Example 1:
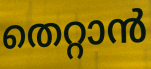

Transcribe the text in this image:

തെറ്റാൻ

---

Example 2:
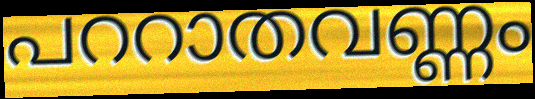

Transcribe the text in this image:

പററാതവണ്ണം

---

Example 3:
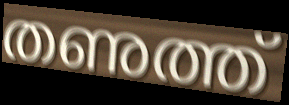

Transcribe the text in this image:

തണുത്ത്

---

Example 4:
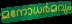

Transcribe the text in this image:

മനോധർമവും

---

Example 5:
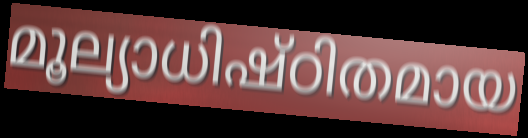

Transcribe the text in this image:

മൂല്യാധിഷ്ഠിതമായ